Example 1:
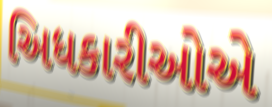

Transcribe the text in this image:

અિધકારીઓએ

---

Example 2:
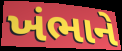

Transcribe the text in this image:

ખંભાને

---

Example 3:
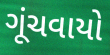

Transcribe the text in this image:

ગૂંચવાયો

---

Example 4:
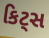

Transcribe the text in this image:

કિટ્સ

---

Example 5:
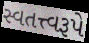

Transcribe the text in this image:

સ્વતત્ત્વરૂપે